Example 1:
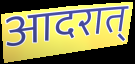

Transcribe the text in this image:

आदरात्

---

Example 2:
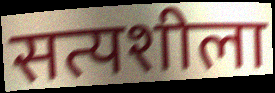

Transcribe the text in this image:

सत्यशीला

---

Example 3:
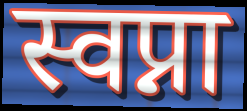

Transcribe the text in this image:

स्वप्ना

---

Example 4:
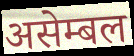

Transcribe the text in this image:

असेम्बल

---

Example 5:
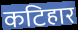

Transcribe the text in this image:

कटिहार